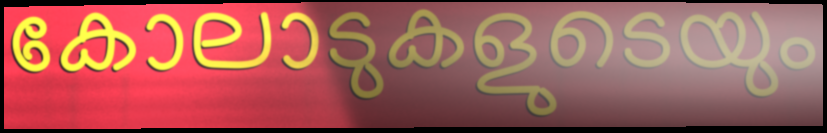
കോലാടുകളുടെയും